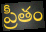
ప్రీతం